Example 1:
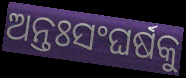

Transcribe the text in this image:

ଅନ୍ତଃସଂଘର୍ଷକୁ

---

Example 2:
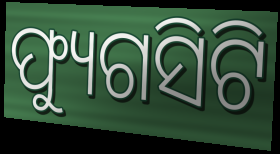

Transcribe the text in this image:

ଫ୍ୟୁଗସିଟି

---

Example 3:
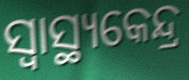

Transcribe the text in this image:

ସ୍ବାସ୍ଥ୍ୟକେନ୍ଦ୍ର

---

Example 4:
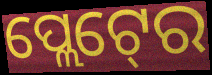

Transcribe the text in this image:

ପ୍ଲେଟ୍‍ରେ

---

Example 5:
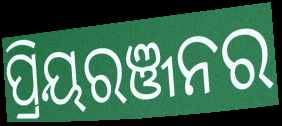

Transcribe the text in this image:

ପ୍ରିୟରଞ୍ଜନର